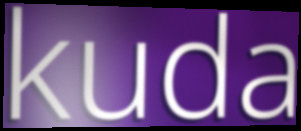
kuda